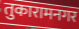
तुकारामनगर